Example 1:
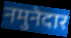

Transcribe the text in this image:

नमुनेदार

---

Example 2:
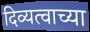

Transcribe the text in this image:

दिव्यत्वाच्या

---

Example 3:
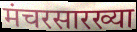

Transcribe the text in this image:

मंचरसारख्या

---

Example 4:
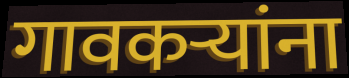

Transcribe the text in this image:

गावकऱ्यांना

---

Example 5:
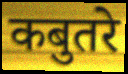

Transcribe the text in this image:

कबुतरे